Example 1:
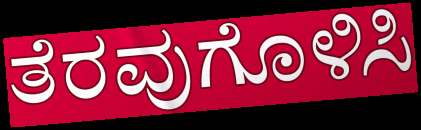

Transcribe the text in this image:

ತೆರವುಗೊಳಿಸಿ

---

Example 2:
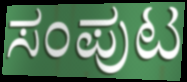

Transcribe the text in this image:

ಸಂಪುಟ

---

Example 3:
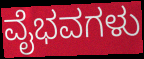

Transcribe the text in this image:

ವೈಭವಗಳು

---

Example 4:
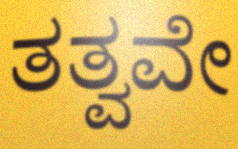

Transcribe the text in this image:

ತತ್ವವೇ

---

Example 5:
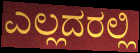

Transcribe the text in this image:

ಎಲ್ಲದರಲ್ಲಿ